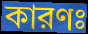
কারণঃ